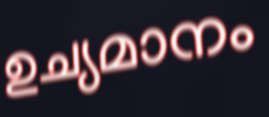
ഉച്യമാനം